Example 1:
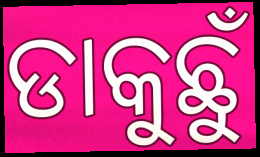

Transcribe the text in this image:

ଡାକୁଛୁଁ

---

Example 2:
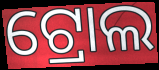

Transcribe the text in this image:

ଟ୍ରୋଲ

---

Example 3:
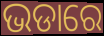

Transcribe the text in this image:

ଭଡାରେ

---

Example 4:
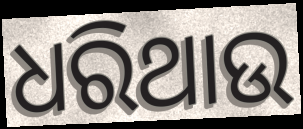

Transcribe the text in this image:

ଧରିଥାଉ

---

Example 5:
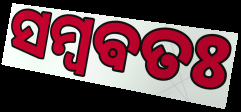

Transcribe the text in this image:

ସମ୍ବଵତଃ